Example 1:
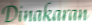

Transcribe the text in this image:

Dinakaran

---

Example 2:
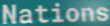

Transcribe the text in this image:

Nations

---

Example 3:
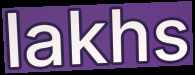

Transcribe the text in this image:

lakhs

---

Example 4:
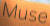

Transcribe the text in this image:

Muse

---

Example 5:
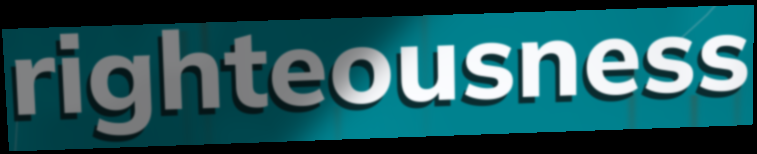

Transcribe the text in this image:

righteousness